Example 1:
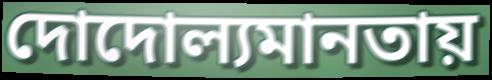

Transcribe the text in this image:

দোদোল্যমানতায়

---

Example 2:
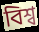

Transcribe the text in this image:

বিশ্ব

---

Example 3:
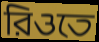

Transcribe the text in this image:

রিওতে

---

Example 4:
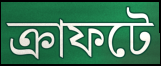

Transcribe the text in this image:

ক্রাফটে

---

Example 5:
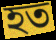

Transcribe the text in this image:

হত